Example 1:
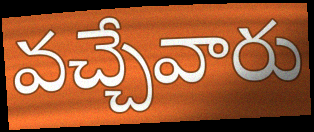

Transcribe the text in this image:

వచ్చేవారు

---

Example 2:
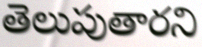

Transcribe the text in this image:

తెలుపుతారని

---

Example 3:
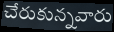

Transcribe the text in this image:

చేరుకున్నవారు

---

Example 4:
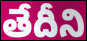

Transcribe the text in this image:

తేదీని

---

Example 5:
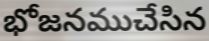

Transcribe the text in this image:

భోజనముచేసిన